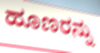
ಹೂಣರನ್ನು